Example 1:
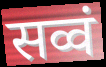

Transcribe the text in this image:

सव्वं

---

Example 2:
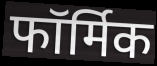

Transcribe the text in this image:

फॉर्मिक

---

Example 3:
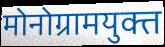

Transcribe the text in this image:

मोनोग्रामयुक्त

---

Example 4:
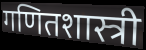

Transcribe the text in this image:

गणितशास्त्री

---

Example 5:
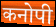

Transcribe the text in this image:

कनोपी